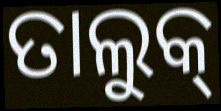
ତାଲୁକ୍